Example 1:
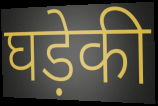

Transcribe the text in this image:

घड़ेकी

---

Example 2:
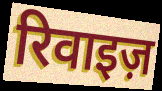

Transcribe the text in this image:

रिवाइज़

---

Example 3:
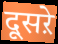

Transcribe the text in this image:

दूसऱे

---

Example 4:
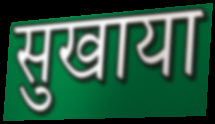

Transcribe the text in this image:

सुखाया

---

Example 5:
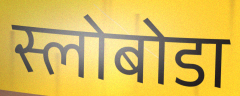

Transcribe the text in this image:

स्लोबोडा